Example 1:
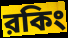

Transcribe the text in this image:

রকিং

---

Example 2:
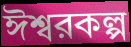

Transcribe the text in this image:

ঈশ্বরকল্প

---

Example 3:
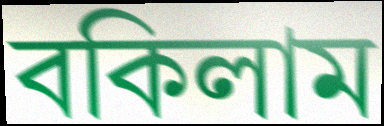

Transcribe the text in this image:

বকিলাম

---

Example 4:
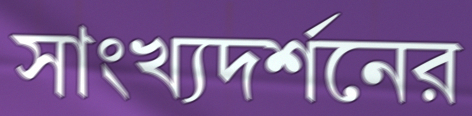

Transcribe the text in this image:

সাংখ্যদর্শনের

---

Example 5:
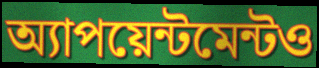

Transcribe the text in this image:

অ্যাপয়েন্টমেন্টও